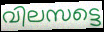
വിലസട്ടെ